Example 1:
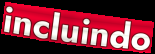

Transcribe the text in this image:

incluindo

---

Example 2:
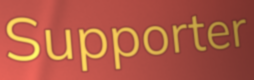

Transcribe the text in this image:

Supporter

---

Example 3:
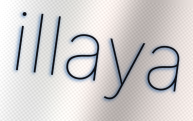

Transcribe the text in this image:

illaya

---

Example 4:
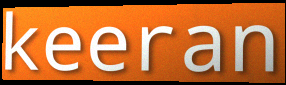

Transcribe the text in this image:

keeran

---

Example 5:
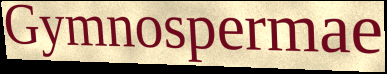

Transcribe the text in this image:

Gymnospermae